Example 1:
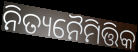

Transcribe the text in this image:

ନିତ୍ୟନୈମିତ୍ତିକ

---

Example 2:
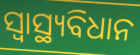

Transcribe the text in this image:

ସ୍ୱାସ୍ଥ୍ୟବିଧାନ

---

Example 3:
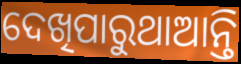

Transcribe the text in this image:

ଦେଖିପାରୁଥାଆନ୍ତି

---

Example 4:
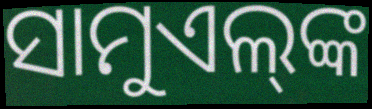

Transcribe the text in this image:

ସାମୁଏଲ୍‌ଙ୍କ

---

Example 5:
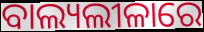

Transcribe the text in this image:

ବାଲ୍ୟଲୀଳାରେ